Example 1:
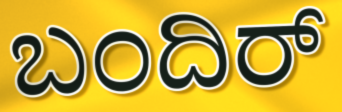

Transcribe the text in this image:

ಬಂದಿರ್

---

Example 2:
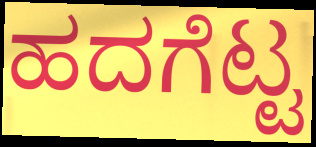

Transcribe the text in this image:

ಹದಗೆಟ್ಟ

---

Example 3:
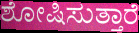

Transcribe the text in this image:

ಶೋಷಿಸುತ್ತಾರೆ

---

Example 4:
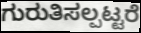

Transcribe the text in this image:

ಗುರುತಿಸಲ್ಪಟ್ಟರೆ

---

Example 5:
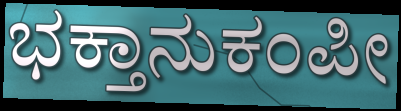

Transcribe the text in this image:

ಭಕ್ತಾನುಕಂಪೀ